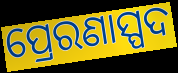
ପ୍ରେରଣାସ୍ପଦ